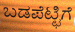
ಬಡಪೆಟ್ಟಿಗೆ